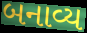
બનાવ્ય